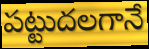
పట్టుదలగానే